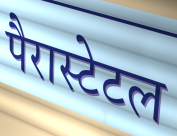
पैरास्टेटल